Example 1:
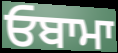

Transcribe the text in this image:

ਓਬਾਮਾ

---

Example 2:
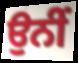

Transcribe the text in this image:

ਉਨੀਂ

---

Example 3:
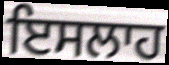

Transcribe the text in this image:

ਇਸਲਾਹ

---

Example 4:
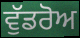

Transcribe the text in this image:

ਵੁੱਡਰੋਅ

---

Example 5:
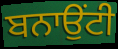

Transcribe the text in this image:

ਬਨਾਉਂਟੀ